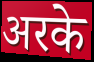
अरके